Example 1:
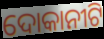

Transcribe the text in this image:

ଦୋକାନୀଟି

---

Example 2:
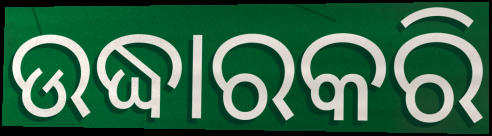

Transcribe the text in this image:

ଉଦ୍ଧାରକରି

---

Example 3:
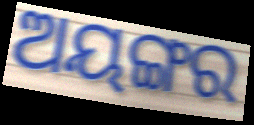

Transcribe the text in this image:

ଅୟଙ୍ଗର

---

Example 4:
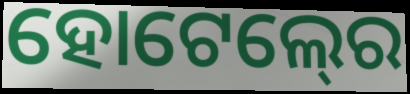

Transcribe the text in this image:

ହୋଟେଲ୍‍ରେ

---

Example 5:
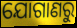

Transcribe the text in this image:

ଯୋଗାଣରୁ